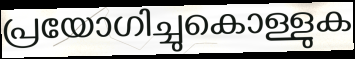
പ്രയോഗിച്ചുകൊള്ളുക